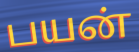
பயன்